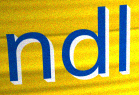
ndl